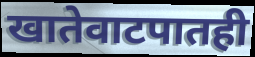
खातेवाटपातही